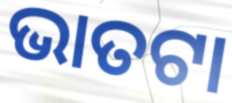
ଭାତଟା